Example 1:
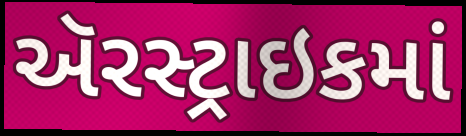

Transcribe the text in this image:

ઍરસ્ટ્રાઇકમાં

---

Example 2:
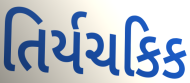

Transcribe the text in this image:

તિર્યચકિક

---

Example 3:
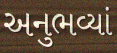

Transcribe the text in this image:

અનુભવ્યાં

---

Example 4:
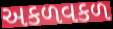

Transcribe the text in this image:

અકળવકળ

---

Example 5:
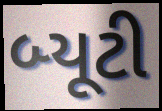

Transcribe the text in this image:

બ્યૂટી